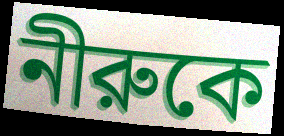
নীরুকে